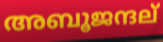
അബൂജന്ദല്